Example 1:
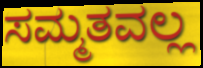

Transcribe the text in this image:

ಸಮ್ಮತವಲ್ಲ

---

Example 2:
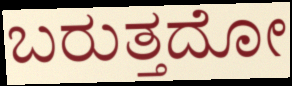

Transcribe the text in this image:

ಬರುತ್ತದೋ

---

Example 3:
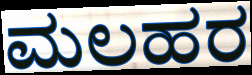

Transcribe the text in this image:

ಮಲಹರ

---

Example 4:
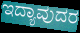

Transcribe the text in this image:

ಇದ್ಯಾವುದರ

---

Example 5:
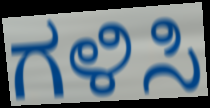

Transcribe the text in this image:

ಗಳಿಸಿ